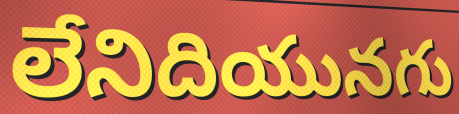
లేనిదియునగు